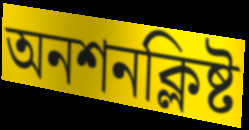
অনশনক্লিষ্ট